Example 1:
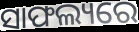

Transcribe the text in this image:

ସାଫଲ୍ୟରେ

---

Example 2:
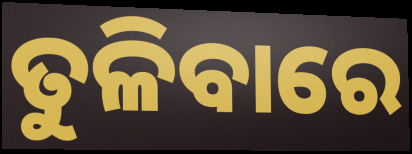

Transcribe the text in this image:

ତୁଳିବାରେ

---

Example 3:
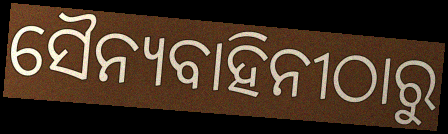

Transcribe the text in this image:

ସୈନ୍ୟବାହିନୀଠାରୁ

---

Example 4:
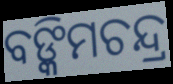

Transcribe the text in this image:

ବଙ୍କିମଚନ୍ଦ୍ର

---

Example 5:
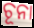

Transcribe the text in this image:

ଚୂନା